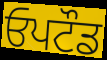
ਓਪਟੌਡ